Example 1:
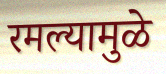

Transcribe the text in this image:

रमल्यामुळे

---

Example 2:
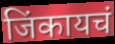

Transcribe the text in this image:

जिंकायचं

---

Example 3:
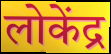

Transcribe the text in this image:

लोकेंद्र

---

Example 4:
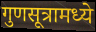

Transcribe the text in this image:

गुणसूत्रामध्ये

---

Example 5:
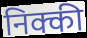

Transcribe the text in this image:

निक्की